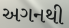
અગનથી